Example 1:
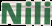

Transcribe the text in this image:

Nili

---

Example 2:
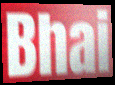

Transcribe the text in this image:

Bhai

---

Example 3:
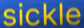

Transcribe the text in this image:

sickle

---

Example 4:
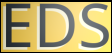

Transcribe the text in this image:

EDS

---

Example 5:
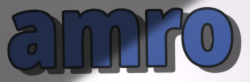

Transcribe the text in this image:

amro